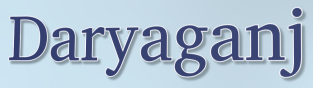
Daryaganj